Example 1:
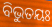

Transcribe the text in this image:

ବିଭୁତୟଃ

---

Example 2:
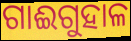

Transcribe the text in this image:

ଗାଈଗୁହାଳ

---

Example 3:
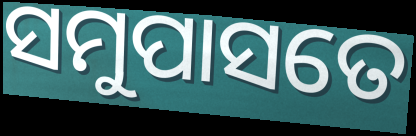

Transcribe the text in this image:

ସମୁପାସତେ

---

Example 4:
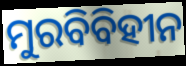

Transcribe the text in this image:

ମୁରବିବିହୀନ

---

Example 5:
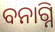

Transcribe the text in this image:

ବନାଗ୍ନି